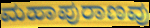
ಮಹಾಪುರಾಣವು